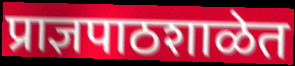
प्राज्ञपाठशाळेत